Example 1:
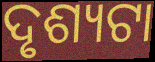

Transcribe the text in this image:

ଦୃଶ୍ୟଟା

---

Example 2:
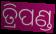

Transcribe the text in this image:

ତ୍ରିପଣ୍ଡ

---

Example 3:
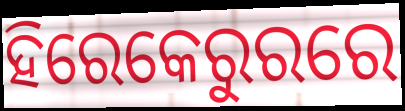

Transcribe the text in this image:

ହିରେକେରୁରରେ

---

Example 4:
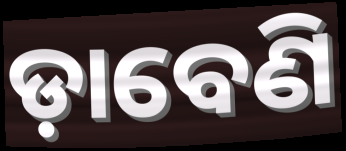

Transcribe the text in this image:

ଡ଼ାବେଣି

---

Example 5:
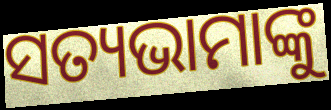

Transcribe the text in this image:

ସତ୍ୟଭାମାଙ୍କୁ